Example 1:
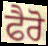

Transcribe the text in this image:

ਫੈਰੋ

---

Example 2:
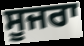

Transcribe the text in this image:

ਸੂਜਰਾ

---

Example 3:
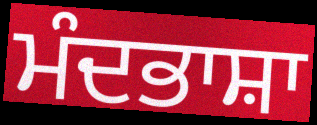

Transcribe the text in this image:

ਮੰਦਭਾਸ਼ਾ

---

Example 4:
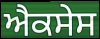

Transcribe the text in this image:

ਐਕਸੇਸ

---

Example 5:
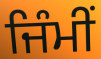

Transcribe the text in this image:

ਜਿੰਮੀਂ